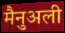
मैनुअली